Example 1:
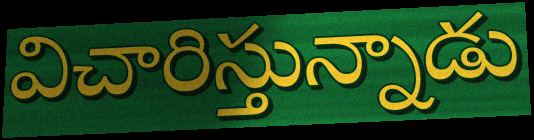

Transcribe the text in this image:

విచారిస్తున్నాడు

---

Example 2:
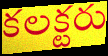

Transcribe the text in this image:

కలక్టరు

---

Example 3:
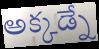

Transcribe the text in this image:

అక్కడ్నే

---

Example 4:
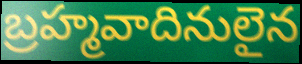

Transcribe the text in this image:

బ్రహ్మవాదినులైన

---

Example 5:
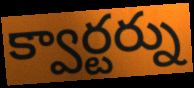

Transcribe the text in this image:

క్వార్టర్ను